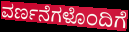
ವರ್ಣನೆಗಳೊಂದಿಗೆ